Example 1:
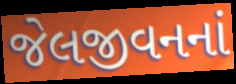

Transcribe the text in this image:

જેલજીવનનાં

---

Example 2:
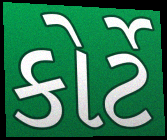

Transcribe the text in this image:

કોર્ટે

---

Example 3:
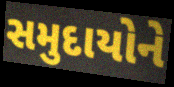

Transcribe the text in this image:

સમુદાયોને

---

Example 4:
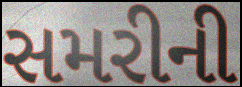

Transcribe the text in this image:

સમરીની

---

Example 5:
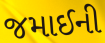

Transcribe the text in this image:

જમાઈની